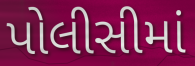
પોલીસીમાં